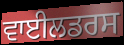
ਵਾਈਲਡਰਸ